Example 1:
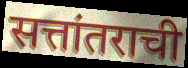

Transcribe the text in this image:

सत्तांतराची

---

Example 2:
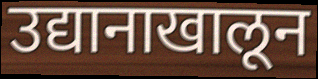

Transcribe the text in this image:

उद्यानाखालून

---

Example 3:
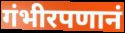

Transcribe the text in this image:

गंभीरपणानं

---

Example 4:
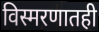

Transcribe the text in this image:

विस्मरणातही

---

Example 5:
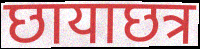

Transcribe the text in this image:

छायाछत्र